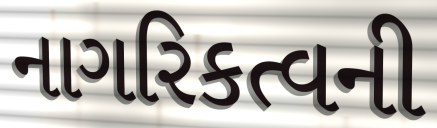
નાગરિકત્વની